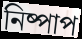
নিষ্পাপ